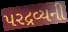
પરદ્રવ્યની